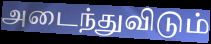
அடைந்துவிடும்